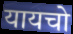
यायचो